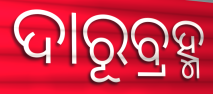
ଦାରୂବ୍ରହ୍ମ